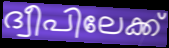
ദ്വീപിലേക്ക്